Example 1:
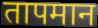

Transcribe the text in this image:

तापमान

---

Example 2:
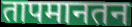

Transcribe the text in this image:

तापमानतन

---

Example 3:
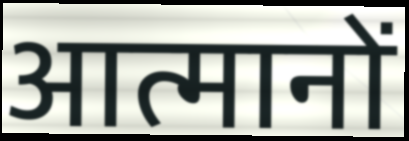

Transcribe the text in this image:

आत्मानों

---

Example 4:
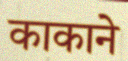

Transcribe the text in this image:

काकाने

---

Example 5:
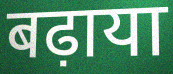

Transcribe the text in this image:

बढ़ाया